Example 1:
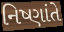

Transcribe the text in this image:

નિષ્ણાંતે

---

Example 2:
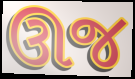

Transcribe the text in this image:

ઊજ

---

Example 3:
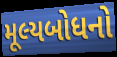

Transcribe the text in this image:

મૂલ્યબોધનો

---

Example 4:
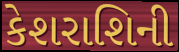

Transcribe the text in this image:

કેશરાશિની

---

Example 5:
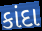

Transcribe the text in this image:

કાંદા